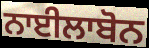
ਨਾਈਲਾਬੋਨ